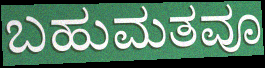
ಬಹುಮತವೂ